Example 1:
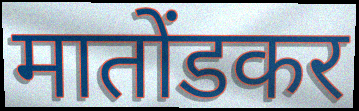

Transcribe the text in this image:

मातोंडकर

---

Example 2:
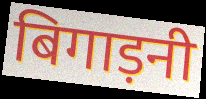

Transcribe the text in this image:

बिगाड़नी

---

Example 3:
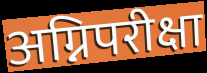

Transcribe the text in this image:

अग्निपरीक्षा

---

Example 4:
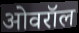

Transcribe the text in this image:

ओवरॉल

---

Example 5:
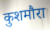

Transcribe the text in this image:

कुशमौरा